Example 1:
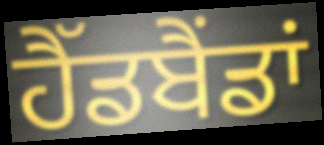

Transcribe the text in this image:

ਹੈੱਡਬੈਂਡਾਂ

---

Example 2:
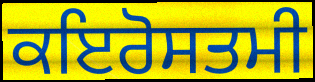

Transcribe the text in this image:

ਕਇਰੋਸਤਮੀ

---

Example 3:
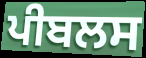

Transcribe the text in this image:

ਪੀਬਲਸ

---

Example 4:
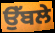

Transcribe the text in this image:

ਉੱਬਲੇ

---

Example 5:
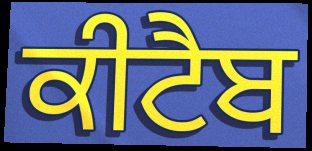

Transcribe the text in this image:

ਕੀਟੈਬ